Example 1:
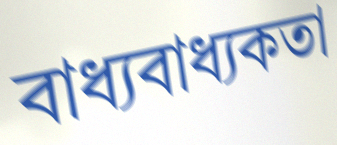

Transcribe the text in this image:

বাধ্যবাধ্যকতা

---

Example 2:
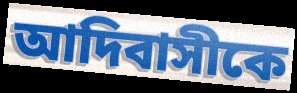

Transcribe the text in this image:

আদিবাসীকে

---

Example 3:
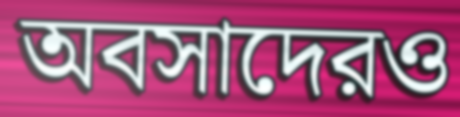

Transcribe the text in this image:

অবসাদেরও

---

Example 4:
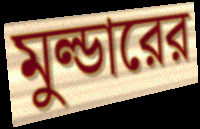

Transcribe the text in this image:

মুল্ডারের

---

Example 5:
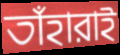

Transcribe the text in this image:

তাঁহারাই